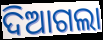
ଦିଆଗଲା